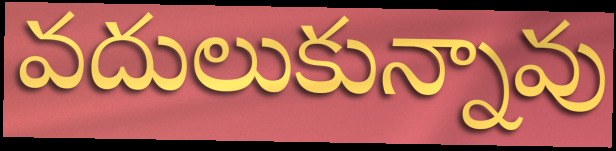
వదులుకున్నావు